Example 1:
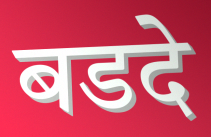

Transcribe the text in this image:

बडदे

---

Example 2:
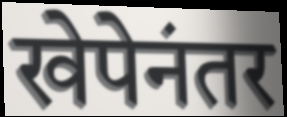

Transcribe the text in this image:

खेपेनंतर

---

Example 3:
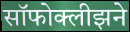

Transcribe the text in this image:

सॉफोक्लीझने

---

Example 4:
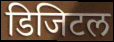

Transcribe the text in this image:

डिजिटल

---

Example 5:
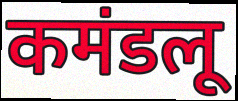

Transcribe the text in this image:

कमंडलू